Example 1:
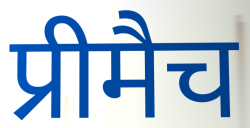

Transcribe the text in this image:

प्रीमैच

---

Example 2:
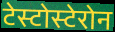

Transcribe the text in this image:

टेस्टोस्टेरोन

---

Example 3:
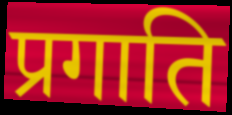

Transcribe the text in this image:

प्रगाति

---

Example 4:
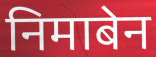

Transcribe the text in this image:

निमाबेन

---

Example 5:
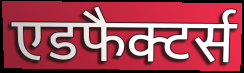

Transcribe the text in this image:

एडफैक्टर्स